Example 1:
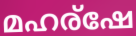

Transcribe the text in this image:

മഹര്ഷേ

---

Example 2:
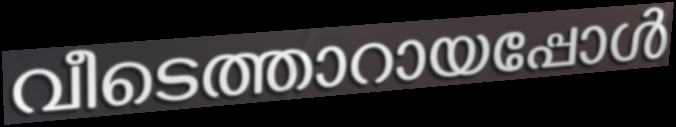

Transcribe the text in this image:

വീടെത്താറായപ്പോൾ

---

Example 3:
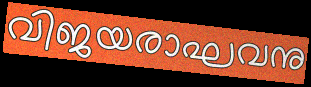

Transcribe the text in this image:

വിജയരാഘവനു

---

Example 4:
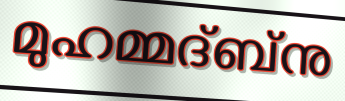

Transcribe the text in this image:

മുഹമ്മദ്ബ്നു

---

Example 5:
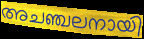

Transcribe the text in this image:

അചഞ്ചലനായി